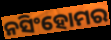
ନସିଂହୋମର